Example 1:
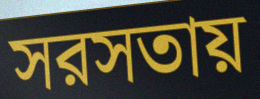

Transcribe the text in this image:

সরসতায়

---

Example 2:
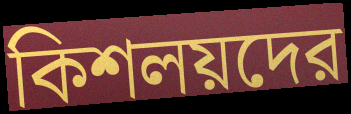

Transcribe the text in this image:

কিশলয়দের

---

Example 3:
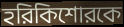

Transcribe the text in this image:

হরিকিশোরকে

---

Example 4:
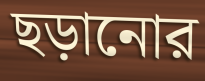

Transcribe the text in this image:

ছড়ানোর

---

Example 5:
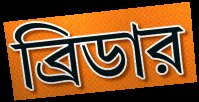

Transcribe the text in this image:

ব্রিডার